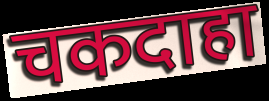
चकदाहा